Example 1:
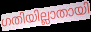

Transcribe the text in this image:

ഗതിയില്ലാതായി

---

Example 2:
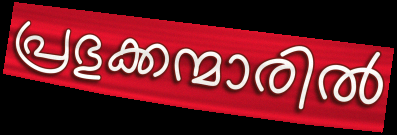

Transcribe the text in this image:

പ്രഭുക്കന്മാരിൽ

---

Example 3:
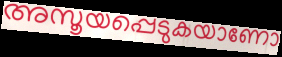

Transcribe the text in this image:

അസൂയപ്പെടുകയാണോ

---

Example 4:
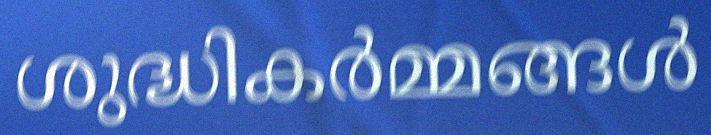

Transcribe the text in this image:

ശുദ്ധികർമ്മങ്ങൾ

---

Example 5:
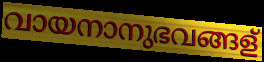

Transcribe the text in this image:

വായനാനുഭവങ്ങള്